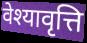
वेश्यावृत्ति